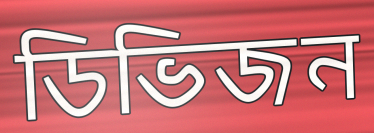
ডিভিজন